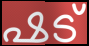
ഷട്